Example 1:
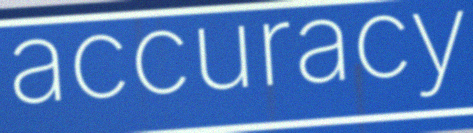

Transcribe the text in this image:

accuracy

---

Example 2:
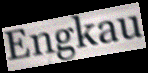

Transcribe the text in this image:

Engkau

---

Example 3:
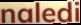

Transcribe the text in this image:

naledi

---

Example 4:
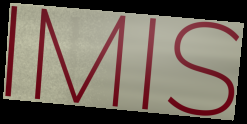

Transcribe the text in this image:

IMIS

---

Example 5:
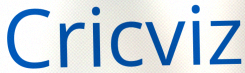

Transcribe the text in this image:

Cricviz